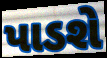
પાડશે